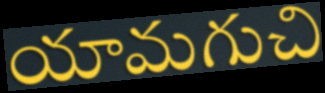
యామగుచి